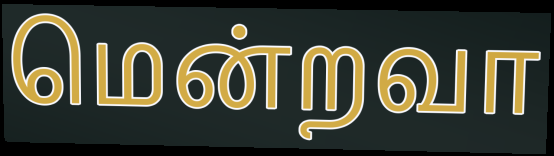
மென்றவா